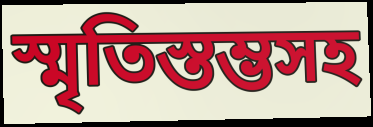
স্মৃতিস্তম্ভসহ